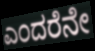
ಎಂದರೆನೇ